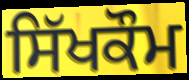
ਸਿੱਖਕੌਮ